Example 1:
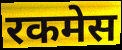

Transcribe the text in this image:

रकमेस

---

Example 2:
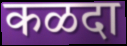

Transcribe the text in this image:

कळदा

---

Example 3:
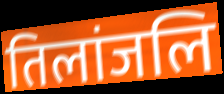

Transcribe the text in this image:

तिलांजलि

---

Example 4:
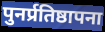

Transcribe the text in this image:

पुनर्प्रतिष्ठापना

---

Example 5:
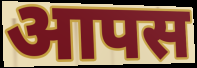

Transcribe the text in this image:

आपस